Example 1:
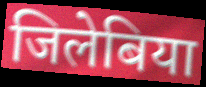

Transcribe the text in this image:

जिलेबिया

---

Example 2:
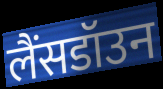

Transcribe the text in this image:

लैंसडॉउन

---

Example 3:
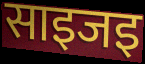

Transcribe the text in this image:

साइजइ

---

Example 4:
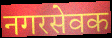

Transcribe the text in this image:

नगरसेवक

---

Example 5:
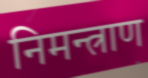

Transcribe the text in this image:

निमन्त्राण